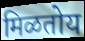
मिळतोय